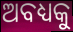
ଅବଧ୍ୟକୁ